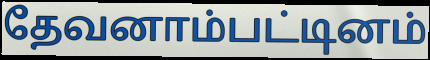
தேவனாம்பட்டினம்